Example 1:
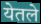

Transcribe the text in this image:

येतले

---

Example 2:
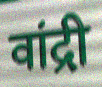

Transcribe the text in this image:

वांद्री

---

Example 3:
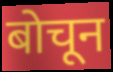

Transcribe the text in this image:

बोचून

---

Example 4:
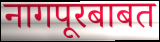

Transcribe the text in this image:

नागपूरबाबत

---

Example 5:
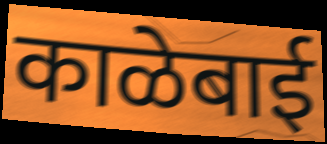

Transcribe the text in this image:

काळेबाई